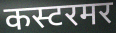
कस्टरमर